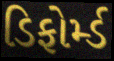
ડિફોર્મ્ડ